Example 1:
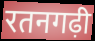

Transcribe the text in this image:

रतनगढ़ी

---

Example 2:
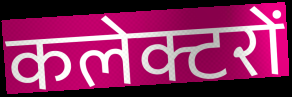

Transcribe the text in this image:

कलेक्टरों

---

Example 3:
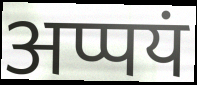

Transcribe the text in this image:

अप्पयं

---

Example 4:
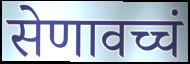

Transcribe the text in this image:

सेणावच्चं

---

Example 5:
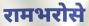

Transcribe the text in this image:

रामभरोसे